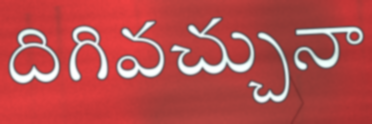
దిగివచ్చునా